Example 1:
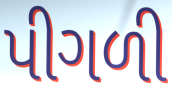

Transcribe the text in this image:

પીગળી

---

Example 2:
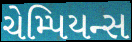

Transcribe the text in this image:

ચેમ્પિયન્સ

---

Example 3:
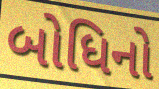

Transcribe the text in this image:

બોધિનો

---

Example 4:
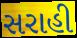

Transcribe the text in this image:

સરાહી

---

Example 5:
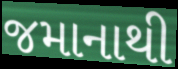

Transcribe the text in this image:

જમાનાથી